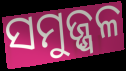
ସମୁଜ୍ଜ୍ୱଳ